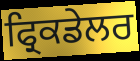
ਫ੍ਰਿਕਡੇਲਰ